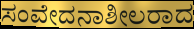
ಸಂವೇದನಾಶೀಲರಾದ